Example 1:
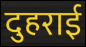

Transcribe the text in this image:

दुहराई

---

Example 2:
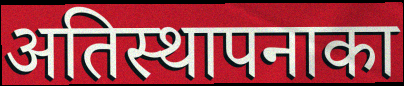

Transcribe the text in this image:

अतिस्थापनाका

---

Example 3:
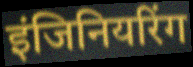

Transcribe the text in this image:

इंजिनियरिंग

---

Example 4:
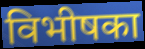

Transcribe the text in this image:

विभीषका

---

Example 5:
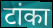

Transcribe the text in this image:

टांका